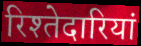
रिश्तेदारियां